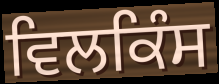
ਵਿਲਕਿੰਸ